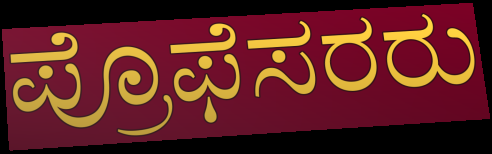
ಪ್ರೊಫೆಸರರು